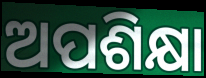
ଅପଶିକ୍ଷା